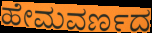
ಹೇಮವರ್ಣದ